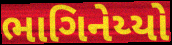
ભાગિનેય્યો